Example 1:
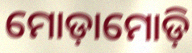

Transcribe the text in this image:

ମୋଡ଼ାମୋଡ଼ି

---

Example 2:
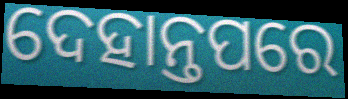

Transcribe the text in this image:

ଦେହାନ୍ତପରେ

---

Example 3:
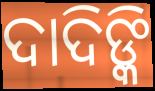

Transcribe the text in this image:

ଦାଦିଙ୍କି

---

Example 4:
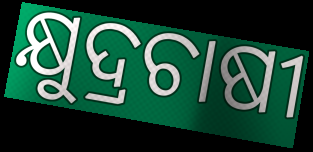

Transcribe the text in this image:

କ୍ଷୁଦ୍ରଚାଷୀ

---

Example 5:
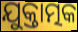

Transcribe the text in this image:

ଯୁକ୍ତାତ୍ମକ